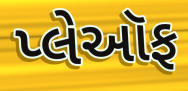
પ્લેઑફ